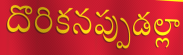
దొరికనప్పుడల్లా